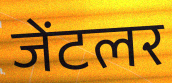
जेंटलर